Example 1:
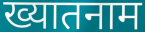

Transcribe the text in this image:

ख्यातनाम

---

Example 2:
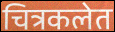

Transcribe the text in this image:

चित्रकलेत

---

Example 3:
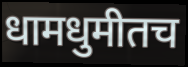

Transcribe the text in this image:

धामधुमीतच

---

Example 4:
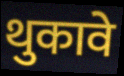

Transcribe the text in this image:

थुकावे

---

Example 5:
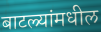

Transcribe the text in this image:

बाटल्यांमधील